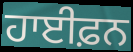
ਹਾਈਫ਼ਨ